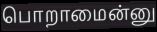
பொறாமைன்னு